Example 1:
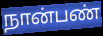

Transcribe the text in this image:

நான்பண்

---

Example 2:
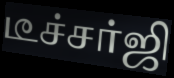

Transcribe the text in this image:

டீச்சர்ஜி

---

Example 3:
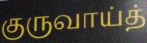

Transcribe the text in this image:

குருவாய்த்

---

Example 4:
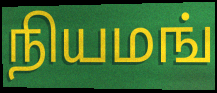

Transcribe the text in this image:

நியமங்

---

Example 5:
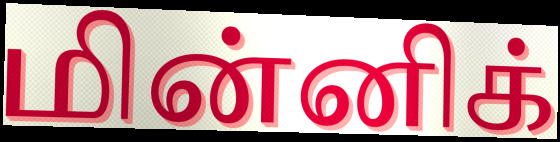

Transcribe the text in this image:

மின்னிக்